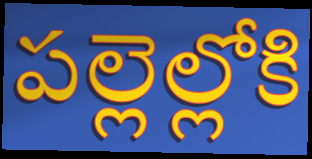
పల్లెల్లోకి